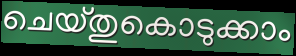
ചെയ്തുകൊടുക്കാം